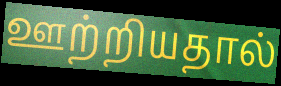
ஊற்றியதால்